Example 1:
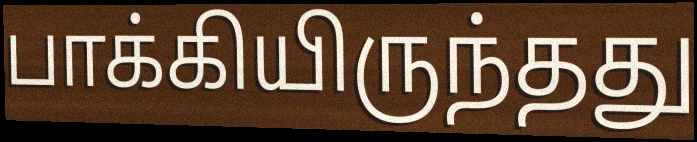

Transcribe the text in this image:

பாக்கியிருந்தது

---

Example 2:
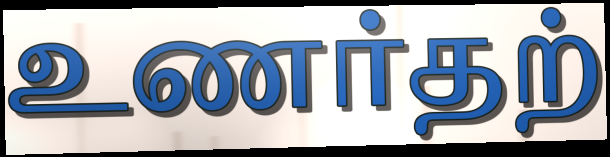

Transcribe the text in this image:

உணர்தற்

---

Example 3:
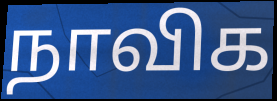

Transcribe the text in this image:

நாவிக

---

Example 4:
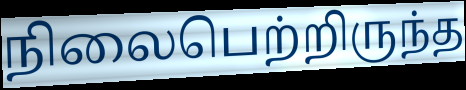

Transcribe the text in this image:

நிலைபெற்றிருந்த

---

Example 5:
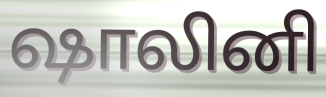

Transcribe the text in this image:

ஷாலினி